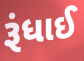
રૂંધાઈ